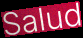
Salud